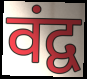
वंद्व